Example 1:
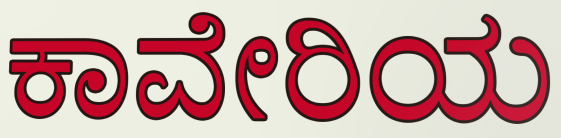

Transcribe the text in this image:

ಕಾವೇರಿಯ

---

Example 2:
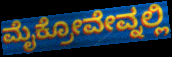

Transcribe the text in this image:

ಮೈಕ್ರೋವೇವ್ನಲ್ಲಿ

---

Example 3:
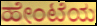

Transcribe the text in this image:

ಹೇಂಟೆಯ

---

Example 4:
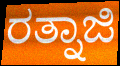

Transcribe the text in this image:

ರತ್ನಾಜಿ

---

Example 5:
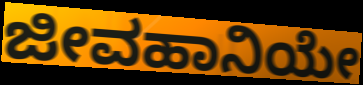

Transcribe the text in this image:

ಜೀವಹಾನಿಯೇ